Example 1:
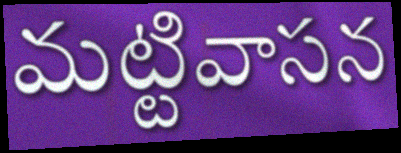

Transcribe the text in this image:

మట్టివాసన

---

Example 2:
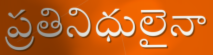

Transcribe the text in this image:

ప్రతినిధులైనా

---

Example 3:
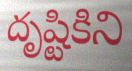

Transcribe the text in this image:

దృష్టికిని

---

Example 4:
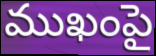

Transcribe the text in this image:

ముఖంపై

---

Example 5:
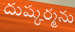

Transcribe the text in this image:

దుష్కర్మను